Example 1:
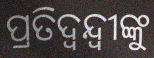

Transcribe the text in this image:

ପ୍ରତିଦ୍ଵନ୍ଦ୍ୱୀଙ୍କୁ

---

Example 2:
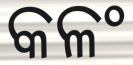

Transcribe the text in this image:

କଳଂ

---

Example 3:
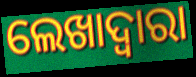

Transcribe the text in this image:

ଲେଖାଦ୍ୱାରା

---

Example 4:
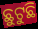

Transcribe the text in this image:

ଛୁଟୁଛି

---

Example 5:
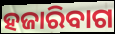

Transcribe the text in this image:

ହଜାରିବାଗ